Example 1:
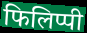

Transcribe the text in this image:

फिलिप्पी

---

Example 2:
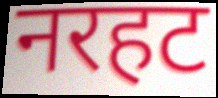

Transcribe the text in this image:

नरहट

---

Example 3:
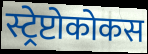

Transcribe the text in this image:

स्ट्रेप्टोकोकस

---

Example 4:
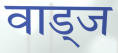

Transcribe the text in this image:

वाड्ज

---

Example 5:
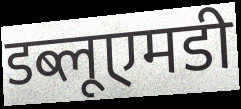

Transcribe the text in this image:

डब्लूएमडी